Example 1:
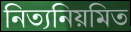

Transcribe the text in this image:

নিত্যনিয়মিত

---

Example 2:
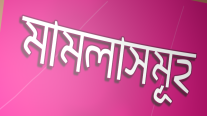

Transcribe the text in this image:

মামলাসমূহ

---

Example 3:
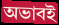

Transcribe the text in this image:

অভাবই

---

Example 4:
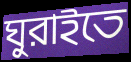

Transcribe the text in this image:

ঘুরাইতে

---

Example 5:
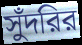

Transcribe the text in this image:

সুঁদরির